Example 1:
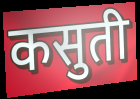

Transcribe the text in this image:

कसुती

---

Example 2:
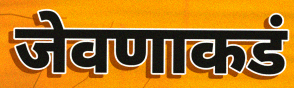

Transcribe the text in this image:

जेवणाकडं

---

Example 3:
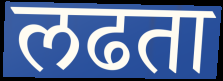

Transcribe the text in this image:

लढता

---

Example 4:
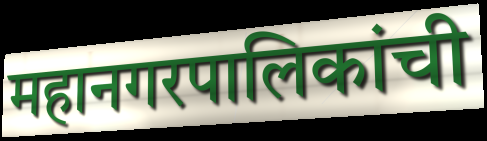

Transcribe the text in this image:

महानगरपालिकांची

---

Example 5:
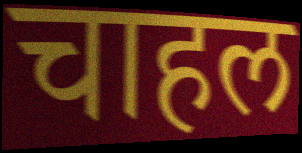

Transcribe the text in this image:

चाहल